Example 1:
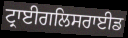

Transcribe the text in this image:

ਟ੍ਰਾਈਗਲਿਸਰਾਈਡ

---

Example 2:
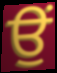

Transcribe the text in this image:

ਉਂ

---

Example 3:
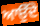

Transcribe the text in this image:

ਆਉੱਦੇ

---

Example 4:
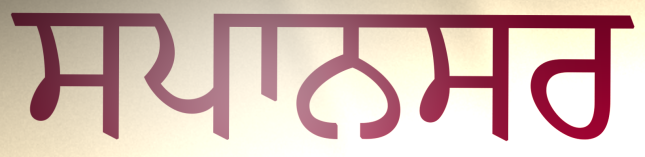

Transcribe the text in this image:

ਸਪਾਨਸਰ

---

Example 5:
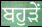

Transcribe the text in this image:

ਬਹੁੜੇਂ